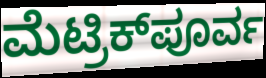
ಮೆಟ್ರಿಕ್‌ಪೂರ್ವ